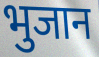
भुजान